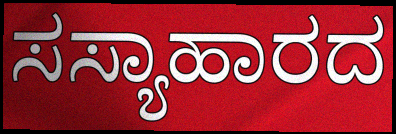
ಸಸ್ಯಾಹಾರದ